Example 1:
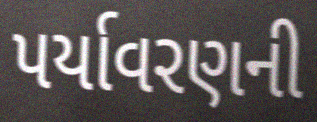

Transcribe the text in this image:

પર્યાવરણની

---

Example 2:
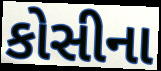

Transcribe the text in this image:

કોસીના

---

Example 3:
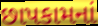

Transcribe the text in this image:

છાપકામનાં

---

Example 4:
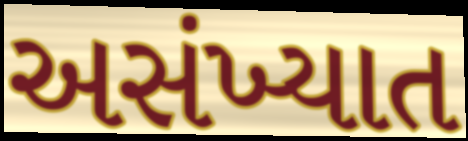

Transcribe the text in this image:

અસંખ્યાત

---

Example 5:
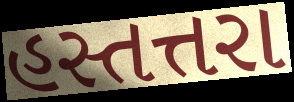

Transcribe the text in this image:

હસ્તત્તરા